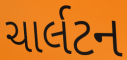
ચાર્લટન